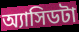
অ্যাসিডটা